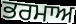
ਭਰਮਾਅ